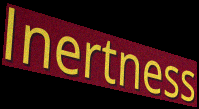
Inertness